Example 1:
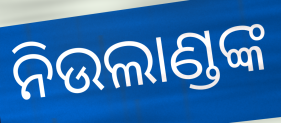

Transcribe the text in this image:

ନିଉଲାଣ୍ଡଙ୍କ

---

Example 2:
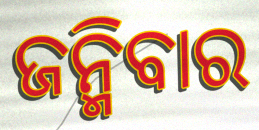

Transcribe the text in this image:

ଜନ୍ମିବାର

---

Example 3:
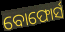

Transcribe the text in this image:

ବୋଫୋର୍ସ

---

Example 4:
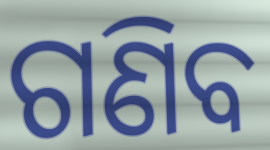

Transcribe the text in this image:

ଗଣିବ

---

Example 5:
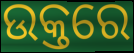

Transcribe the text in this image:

ଉକ୍ତରେ